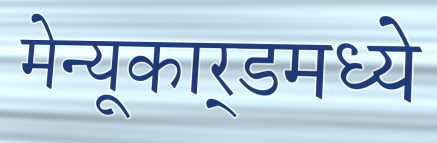
मेन्यूकार्डमध्ये